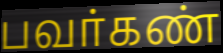
பவர்கண்